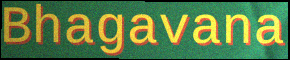
Bhagavana